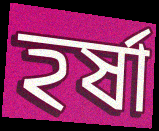
হর্ষা